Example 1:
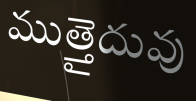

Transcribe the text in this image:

ముత్తైదువు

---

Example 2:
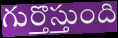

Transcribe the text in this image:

గుర్తొస్తుంది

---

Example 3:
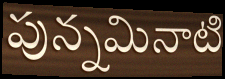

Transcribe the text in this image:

పున్నమినాటి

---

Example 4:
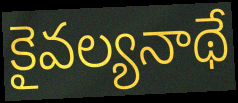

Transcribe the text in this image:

కైవల్యనాథే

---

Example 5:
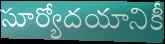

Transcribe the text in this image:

సూర్యోదయానికీ